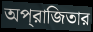
অপ্‌রাজিতার